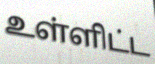
உள்ளிட்ட